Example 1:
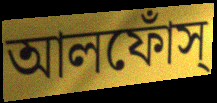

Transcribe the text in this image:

আলফোঁস্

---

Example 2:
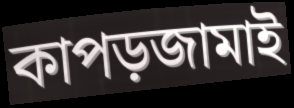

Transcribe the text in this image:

কাপড়জামাই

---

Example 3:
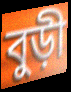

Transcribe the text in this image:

বুড়ী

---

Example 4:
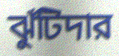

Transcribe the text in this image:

ঝুঁটিদার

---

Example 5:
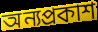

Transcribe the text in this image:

অন্যপ্রকাশ